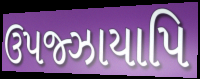
ઉપજ્ઝાયાપિ